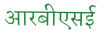
आरबीएसई